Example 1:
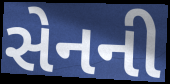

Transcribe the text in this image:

સેનની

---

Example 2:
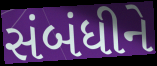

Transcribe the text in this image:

સંબંધીને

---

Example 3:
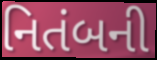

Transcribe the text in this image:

નિતંબની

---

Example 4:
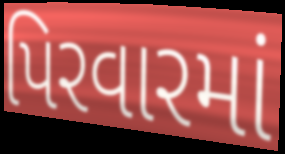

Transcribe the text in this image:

પિરવારમાં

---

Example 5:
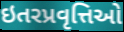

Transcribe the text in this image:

ઇતરપ્રવૃત્તિઓ